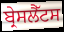
ਬ੍ਰੇਸਲੈੱਟਸ